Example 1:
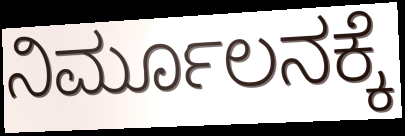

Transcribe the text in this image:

ನಿರ್ಮೂಲನಕ್ಕೆ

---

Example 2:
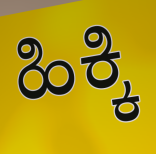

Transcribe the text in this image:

ಹಿಕ್ಕಿ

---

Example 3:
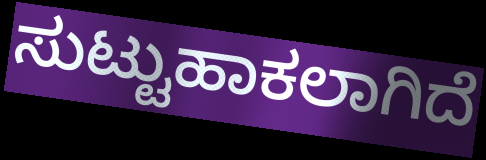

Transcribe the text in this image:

ಸುಟ್ಟುಹಾಕಲಾಗಿದೆ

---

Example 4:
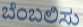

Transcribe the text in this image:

ಬೆಂಬಲಿಸು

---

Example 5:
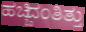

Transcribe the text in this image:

ಹಚ್ಚಿದಂತಿತ್ತು